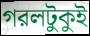
গরলটুকুই